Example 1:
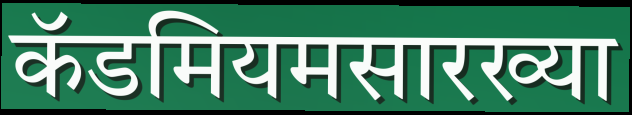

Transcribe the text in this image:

कॅडमियमसारख्या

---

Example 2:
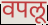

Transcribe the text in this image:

वपलू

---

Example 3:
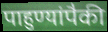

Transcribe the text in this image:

पाहुण्यांपैकी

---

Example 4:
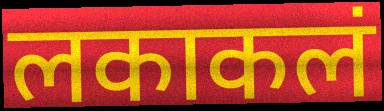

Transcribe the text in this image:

लकाकलं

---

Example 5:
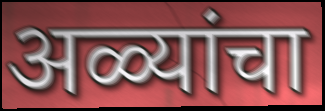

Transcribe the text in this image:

अळ्यांचा